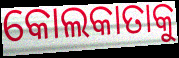
କୋଲକାତାକୁ